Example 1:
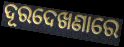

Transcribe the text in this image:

ଦୂରଦେଖଣାରେ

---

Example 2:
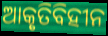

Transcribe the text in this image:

ଆକୃତିବିହୀନ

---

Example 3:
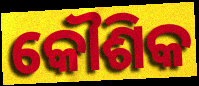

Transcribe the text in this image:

କୌଶିକ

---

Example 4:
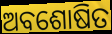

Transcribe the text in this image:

ଅବଶୋଷିତ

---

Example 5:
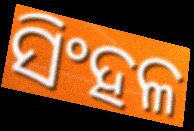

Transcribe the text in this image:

ସିଂହଳ